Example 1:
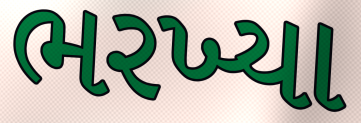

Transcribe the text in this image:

ભરખ્યા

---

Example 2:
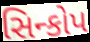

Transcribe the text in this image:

સિન્કોપ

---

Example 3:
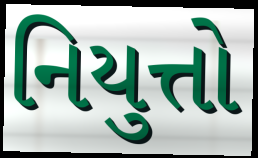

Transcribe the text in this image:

નિયુત્તો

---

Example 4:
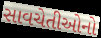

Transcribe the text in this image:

સાવચેતીઓનો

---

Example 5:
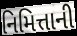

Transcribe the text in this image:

નિમિત્તાની